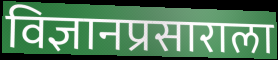
विज्ञानप्रसाराला